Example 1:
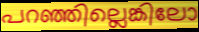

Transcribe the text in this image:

പറഞ്ഞില്ലെങ്കിലോ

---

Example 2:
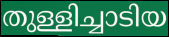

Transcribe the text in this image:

തുള്ളിച്ചാടിയ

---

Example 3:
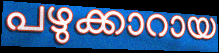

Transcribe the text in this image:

പഴുക്കാറായ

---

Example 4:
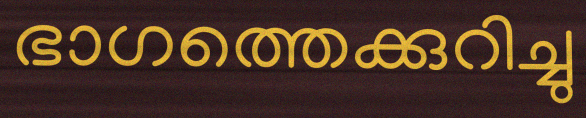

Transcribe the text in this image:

ഭാഗത്തെക്കുറിച്ചു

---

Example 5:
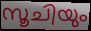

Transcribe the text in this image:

സൂചിയും